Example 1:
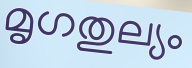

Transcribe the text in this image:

മൃഗതുല്യം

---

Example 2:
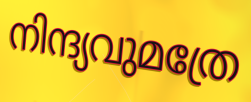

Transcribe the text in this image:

നിന്ദ്യവുമത്രേ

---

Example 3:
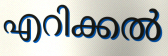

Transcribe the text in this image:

എറിക്കൽ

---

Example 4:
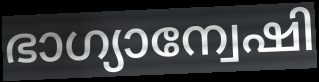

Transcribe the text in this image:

ഭാഗ്യാന്വേഷി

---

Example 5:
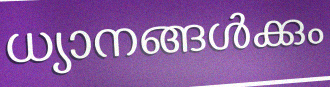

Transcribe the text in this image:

ധ്യാനങ്ങൾക്കും